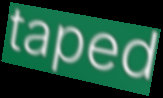
taped